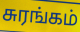
சுரங்கம்